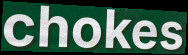
chokes